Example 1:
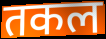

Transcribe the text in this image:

तकल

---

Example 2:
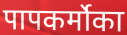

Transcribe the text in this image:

पापकर्मोका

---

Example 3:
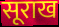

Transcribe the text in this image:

सूराख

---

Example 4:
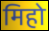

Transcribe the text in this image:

मिहो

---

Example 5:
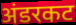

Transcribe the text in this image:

अंडरकट